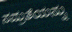
ನಮ್ರತೆಯನ್ನು